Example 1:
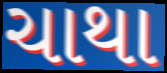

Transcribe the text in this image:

ચાથા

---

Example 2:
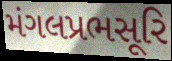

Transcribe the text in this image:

મંગલપ્રભસૂરિ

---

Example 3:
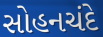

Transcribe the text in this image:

સોહનચંદે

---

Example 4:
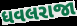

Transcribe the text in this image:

ધવલરાજા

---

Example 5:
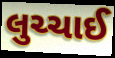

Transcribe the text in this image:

લુચ્ચાઈ